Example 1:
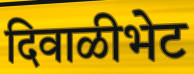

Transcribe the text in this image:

दिवाळीभेट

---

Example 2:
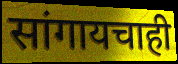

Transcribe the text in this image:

सांगायचाही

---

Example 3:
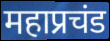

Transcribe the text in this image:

महाप्रचंड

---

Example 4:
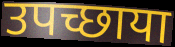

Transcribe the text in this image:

उपच्छाया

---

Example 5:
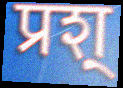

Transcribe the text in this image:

प्रश्